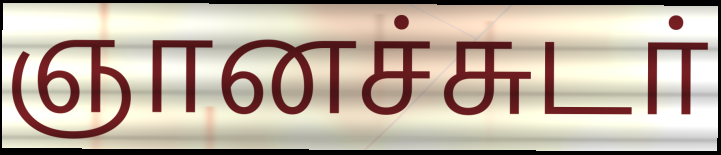
ஞானச்சுடர்